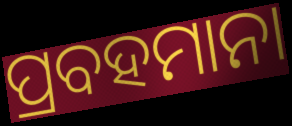
ପ୍ରବହମାନା